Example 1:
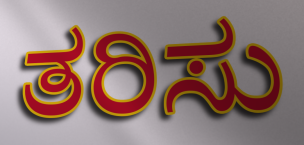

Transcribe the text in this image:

ತರಿಸು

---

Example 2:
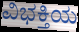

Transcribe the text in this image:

ವಿಭಕ್ತಿಯ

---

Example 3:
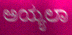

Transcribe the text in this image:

ಅಯ್ಯಲಾ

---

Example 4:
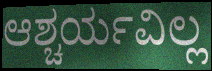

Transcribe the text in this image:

ಆಶ್ಚರ್ಯವಿಲ್ಲ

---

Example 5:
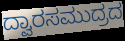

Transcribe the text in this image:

ದ್ವಾರಸಮುದ್ರದ